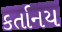
કર્તાનય